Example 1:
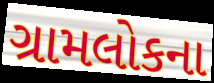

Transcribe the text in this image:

ગ્રામલોકના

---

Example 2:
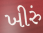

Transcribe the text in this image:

ખીરું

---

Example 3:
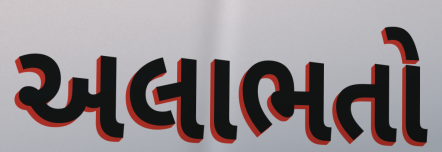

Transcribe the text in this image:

અલાભતો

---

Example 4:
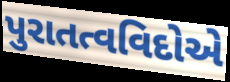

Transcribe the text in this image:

પુરાતત્વવિદોએ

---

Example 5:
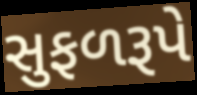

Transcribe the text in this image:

સુફળરૂપે